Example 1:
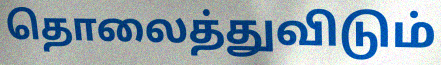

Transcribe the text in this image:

தொலைத்துவிடும்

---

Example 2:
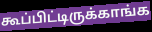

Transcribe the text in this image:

கூப்பிட்டிருக்காங்க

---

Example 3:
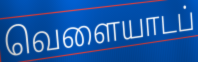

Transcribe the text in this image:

வெளையாடப்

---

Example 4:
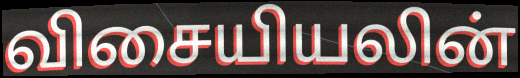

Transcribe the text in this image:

விசையியலின்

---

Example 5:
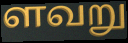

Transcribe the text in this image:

ளவறு